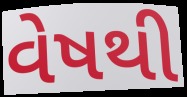
વેષથી